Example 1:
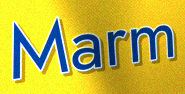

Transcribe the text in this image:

Marm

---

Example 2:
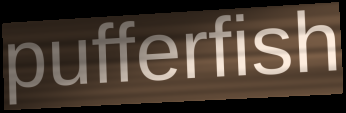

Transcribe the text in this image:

pufferfish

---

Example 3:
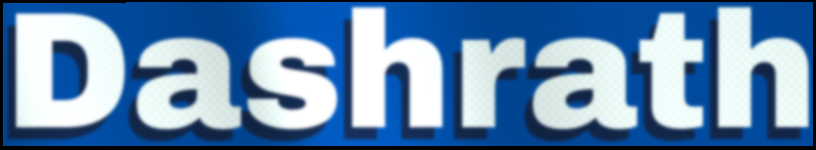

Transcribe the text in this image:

Dashrath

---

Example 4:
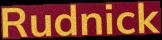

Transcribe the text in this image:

Rudnick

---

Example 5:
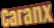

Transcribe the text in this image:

Caranx